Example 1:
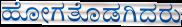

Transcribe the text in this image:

ಹೋಗತೊಡಗಿದರು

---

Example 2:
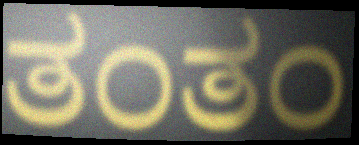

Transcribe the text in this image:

ತಂತಂ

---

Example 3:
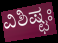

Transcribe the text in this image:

ವಿಶಿಷ್ಟಃ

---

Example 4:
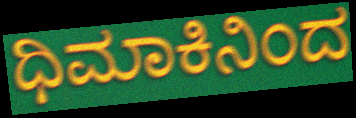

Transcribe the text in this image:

ಧಿಮಾಕಿನಿಂದ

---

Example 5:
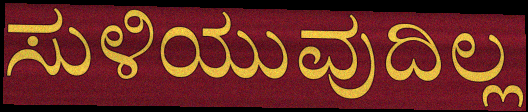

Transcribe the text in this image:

ಸುಳಿಯುವುದಿಲ್ಲ